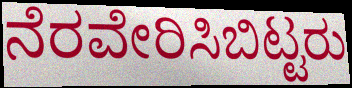
ನೆರವೇರಿಸಿಬಿಟ್ಟರು